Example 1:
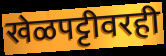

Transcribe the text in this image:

खेळपट्टीवरही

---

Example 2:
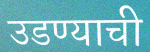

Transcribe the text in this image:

उडण्याची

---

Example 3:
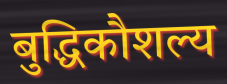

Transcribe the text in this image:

बुद्धिकौशल्य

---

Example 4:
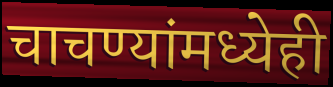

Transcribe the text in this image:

चाचण्यांमध्येही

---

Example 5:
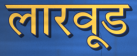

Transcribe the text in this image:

लारवूड